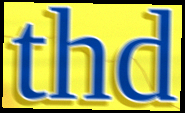
thd